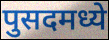
पुसदमध्ये